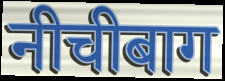
नीचीबाग